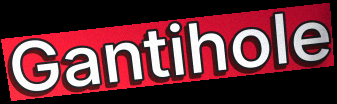
Gantihole